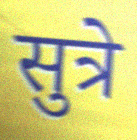
सुत्रे